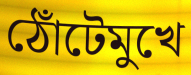
ঠোঁটেমুখে